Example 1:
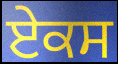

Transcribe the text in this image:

ਏਕਸ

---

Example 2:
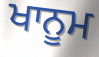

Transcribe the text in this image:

ਖਾਨੂਮ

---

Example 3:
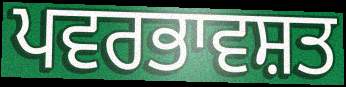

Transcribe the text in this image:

ਪਵਰਭਾਵਸ਼ਤ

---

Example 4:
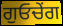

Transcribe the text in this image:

ਗੁਓਚੇਂਗ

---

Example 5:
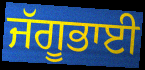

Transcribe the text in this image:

ਜੱਗੂਭਾਈ